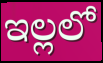
ఇల్లలో